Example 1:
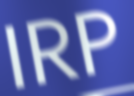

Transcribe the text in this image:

IRP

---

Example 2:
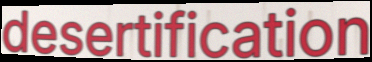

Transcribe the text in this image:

desertification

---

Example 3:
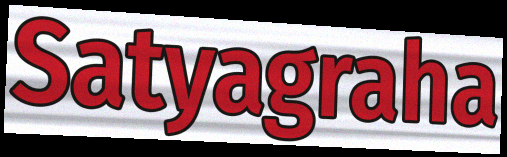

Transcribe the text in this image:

Satyagraha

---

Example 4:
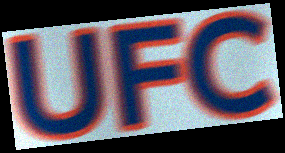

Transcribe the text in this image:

UFC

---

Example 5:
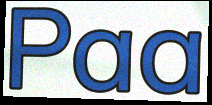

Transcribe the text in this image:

Paa